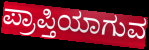
ಪ್ರಾಪ್ತಿಯಾಗುವ